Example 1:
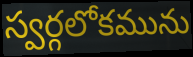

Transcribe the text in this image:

స్వర్గలోకమును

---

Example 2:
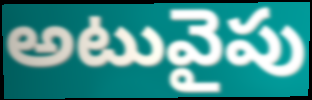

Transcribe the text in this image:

అటువైపు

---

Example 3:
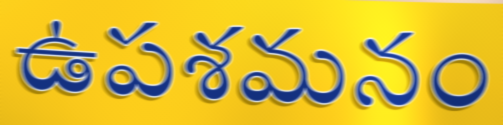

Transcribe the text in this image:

ఉపశమనం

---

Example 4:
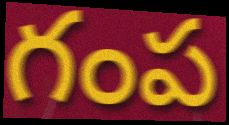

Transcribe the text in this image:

గంప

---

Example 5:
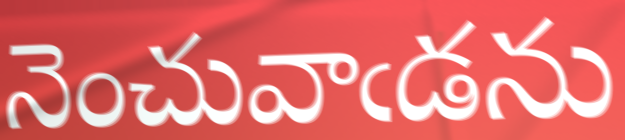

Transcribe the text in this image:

నెంచువాఁడను